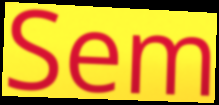
Sem